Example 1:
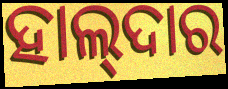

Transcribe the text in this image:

ହାଲ୍‌ଦାର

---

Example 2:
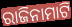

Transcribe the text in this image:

ରାଜିନାମାଟି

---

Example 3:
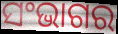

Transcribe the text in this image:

ସଂଭାଗର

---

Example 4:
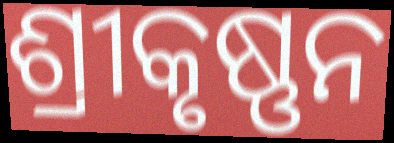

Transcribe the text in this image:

ଶ୍ରୀକୃଷ୍ଣନ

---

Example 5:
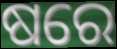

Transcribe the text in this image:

ଷରେ